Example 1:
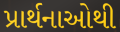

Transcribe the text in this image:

પ્રાર્થનાઓથી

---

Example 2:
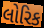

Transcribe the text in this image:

લોરિક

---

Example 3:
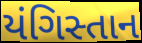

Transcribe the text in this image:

યંગિસ્તાન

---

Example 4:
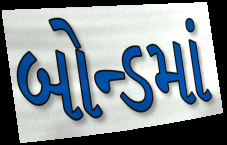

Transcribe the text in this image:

બોન્ડમાં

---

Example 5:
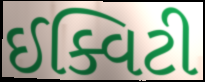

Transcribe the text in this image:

ઈક્વિટી